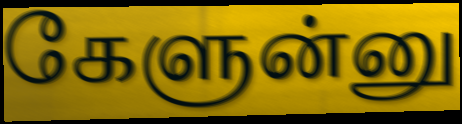
கேளுன்னு